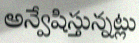
అన్వేషిస్తున్నట్లు